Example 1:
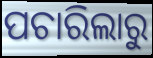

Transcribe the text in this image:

ପଚାରିଲାରୁ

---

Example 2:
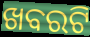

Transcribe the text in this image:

ଖବରଟି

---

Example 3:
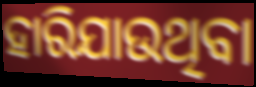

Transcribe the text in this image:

ହାରିଯାଉଥିବା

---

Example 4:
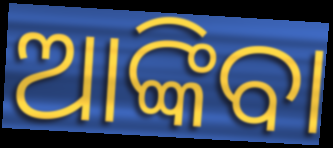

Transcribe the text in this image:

ଆଙ୍କିବା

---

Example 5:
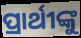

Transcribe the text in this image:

ପ୍ରାର୍ଥୀଙ୍କୁ